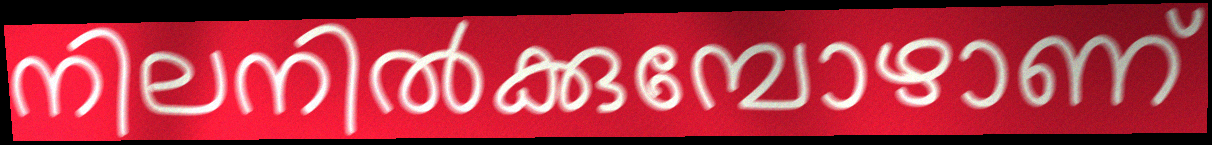
നിലനിൽക്കുമ്പോഴാണ്